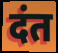
दंत